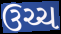
ઉચ્ચ